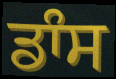
ਡਾੰਸ